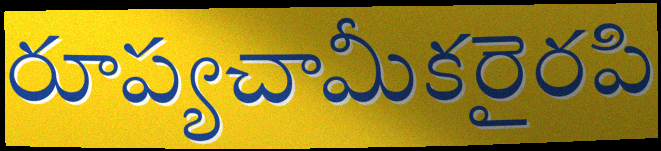
రూప్యచామీకరైరపి